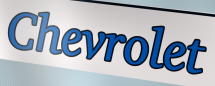
Chevrolet